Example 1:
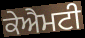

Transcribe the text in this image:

ਕੇਐਮਟੀ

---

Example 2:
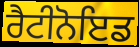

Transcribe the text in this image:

ਰੈਟੀਨੋਇਡ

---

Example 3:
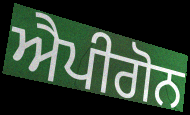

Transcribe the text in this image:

ਐਪੀਗੋਨ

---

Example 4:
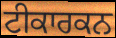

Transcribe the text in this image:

ਟੀਕਾਰਕਨ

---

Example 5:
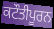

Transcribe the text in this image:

ਕਟੌਤੀਪੂਰਨ